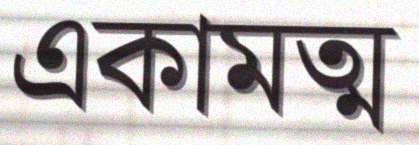
একামত্ম